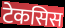
टेकसिस